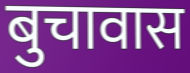
बुचावास